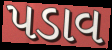
પડાવ